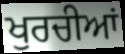
ਖੁਰਚੀਆਂ